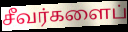
சீவர்களைப்